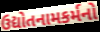
ઉદ્યોતનામકર્મનો